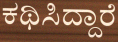
ಕಥಿಸಿದ್ದಾರೆ